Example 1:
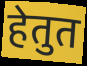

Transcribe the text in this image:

हेतुत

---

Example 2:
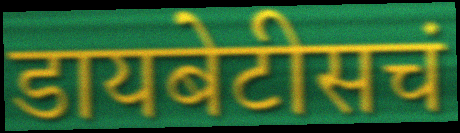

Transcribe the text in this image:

डायबेटीसचं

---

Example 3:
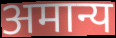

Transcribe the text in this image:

अमान्य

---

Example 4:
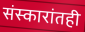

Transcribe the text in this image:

संस्कारांतही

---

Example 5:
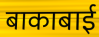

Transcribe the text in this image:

बाकाबाई